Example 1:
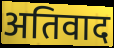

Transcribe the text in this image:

अतिवाद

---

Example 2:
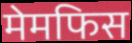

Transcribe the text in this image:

मेमफिस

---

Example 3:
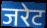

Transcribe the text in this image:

जरेट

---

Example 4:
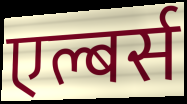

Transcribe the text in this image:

एल्बर्स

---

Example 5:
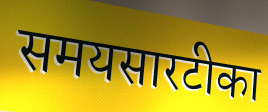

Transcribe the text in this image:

समयसारटीका